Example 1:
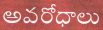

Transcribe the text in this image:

అవరోధాలు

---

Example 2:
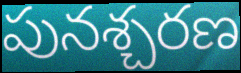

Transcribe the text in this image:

పునశ్చరణ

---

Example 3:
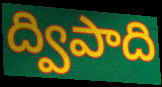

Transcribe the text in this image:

ద్విపాది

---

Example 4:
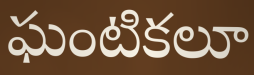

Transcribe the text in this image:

ఘంటికలూ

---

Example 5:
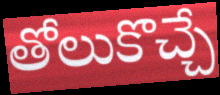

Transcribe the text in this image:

తోలుకొచ్చే